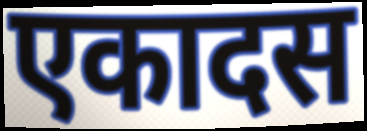
एकादस